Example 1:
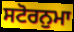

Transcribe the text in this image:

ਸਟੋਰਨੁਮਾ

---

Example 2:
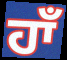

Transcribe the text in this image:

ਹਾਁ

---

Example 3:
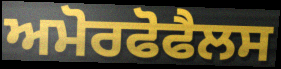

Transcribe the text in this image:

ਅਮੋਰਫੋਫੈਲਸ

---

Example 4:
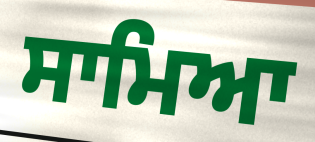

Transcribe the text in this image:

ਸਾਮਿਆ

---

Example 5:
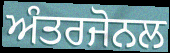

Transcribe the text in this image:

ਅੰਤਰਜੋਨਲ